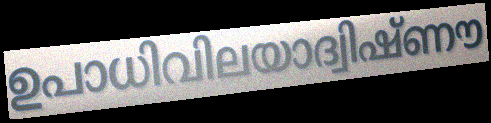
ഉപാധിവിലയാദ്വിഷ്ണൗ